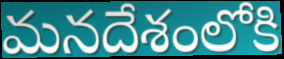
మనదేశంలోకి